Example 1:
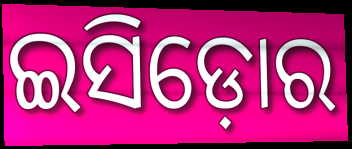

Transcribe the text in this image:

ଇସିଡ଼ୋର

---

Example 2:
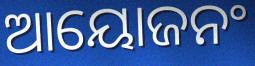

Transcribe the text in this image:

ଆୟୋଜନଂ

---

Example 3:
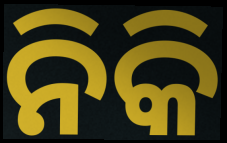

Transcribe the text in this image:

ନିକି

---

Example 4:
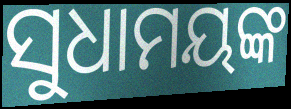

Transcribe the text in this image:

ସୁଧାମୟଙ୍କ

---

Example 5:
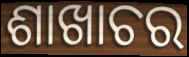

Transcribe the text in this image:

ଶାଖାଚର